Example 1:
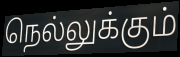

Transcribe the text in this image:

நெல்லுக்கும்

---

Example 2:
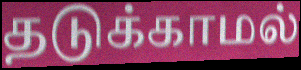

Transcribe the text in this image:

தடுக்காமல்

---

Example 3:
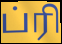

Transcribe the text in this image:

ப்ரி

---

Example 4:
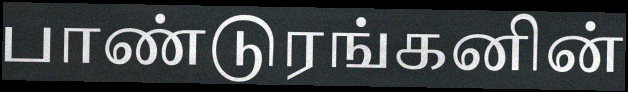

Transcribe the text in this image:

பாண்டுரங்கனின்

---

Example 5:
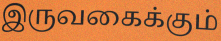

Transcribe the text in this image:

இருவகைக்கும்